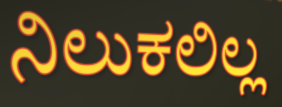
ನಿಲುಕಲಿಲ್ಲ